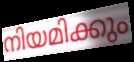
നിയമിക്കും